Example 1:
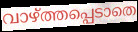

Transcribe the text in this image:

വാഴ്ത്തപ്പെടാതെ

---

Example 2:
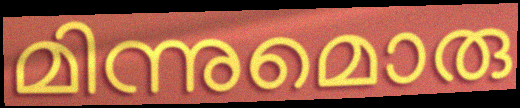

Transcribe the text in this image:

മിന്നുമൊരു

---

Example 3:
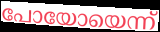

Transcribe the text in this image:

പോയോയെന്ന്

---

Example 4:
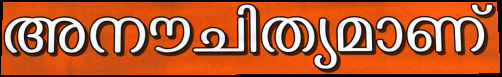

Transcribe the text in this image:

അനൗചിത്യമാണ്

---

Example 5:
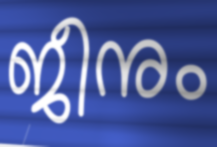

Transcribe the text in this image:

ജീനും